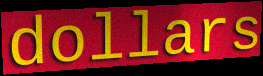
dollars